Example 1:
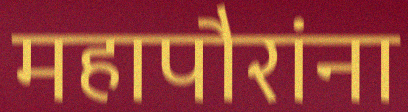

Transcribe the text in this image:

महापौरांना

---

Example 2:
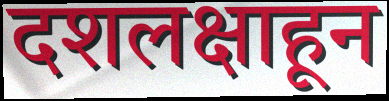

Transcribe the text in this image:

दशलक्षाहून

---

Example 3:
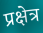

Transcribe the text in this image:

प्रक्षेत्र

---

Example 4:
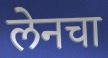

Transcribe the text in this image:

लेनचा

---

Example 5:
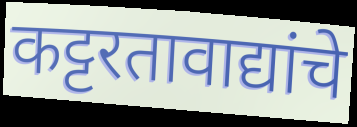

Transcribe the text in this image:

कट्टरतावाद्यांचे